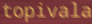
topivala